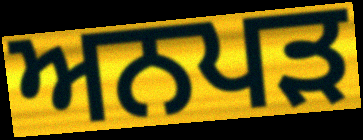
ਅਨਪੜ